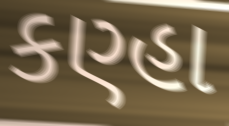
કણ્હા